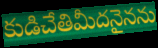
కుడిచేతిమీదనైనను